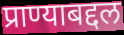
प्राण्याबद्दल